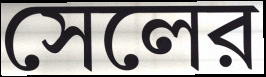
সেলের